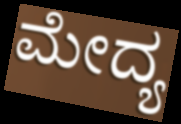
ಮೇದ್ಯ